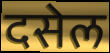
दसेल